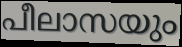
പീലാസയും